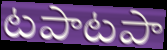
టపాటపా